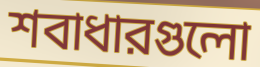
শবাধারগুলো